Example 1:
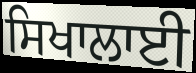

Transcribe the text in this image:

ਸਿਖਾਲਾਈ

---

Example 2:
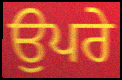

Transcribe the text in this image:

ਉਪਰੇ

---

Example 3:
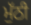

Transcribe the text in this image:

ਮੁੱਠੀ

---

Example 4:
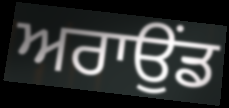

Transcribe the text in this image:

ਅਰਾਉਂਡ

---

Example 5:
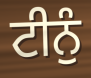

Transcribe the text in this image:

ਟੀਨੁੰ